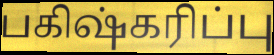
பகிஷ்கரிப்பு